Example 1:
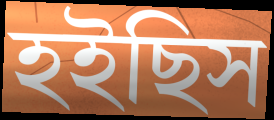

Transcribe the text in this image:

হইছিস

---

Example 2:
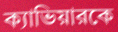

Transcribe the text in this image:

ক্যাভিয়ারকে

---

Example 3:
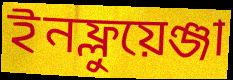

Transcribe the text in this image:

ইনফ্লুয়েঞ্জা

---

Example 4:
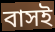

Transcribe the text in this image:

বাসই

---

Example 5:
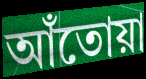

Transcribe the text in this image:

আঁতোয়া